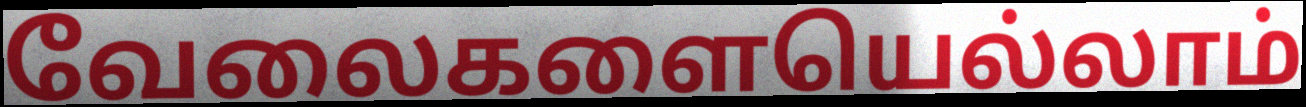
வேலைகளையெல்லாம்